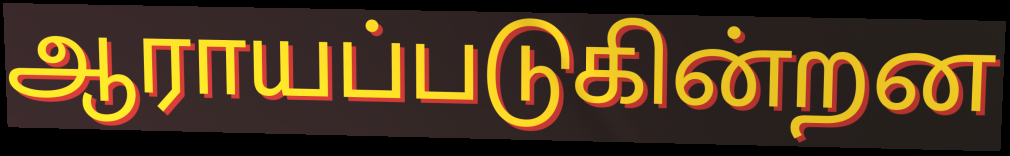
ஆராயப்படுகின்றன